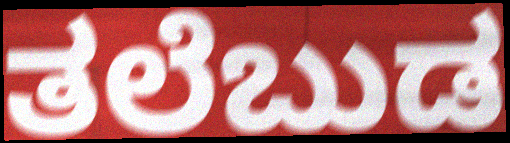
ತಲೆಬುಡ